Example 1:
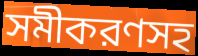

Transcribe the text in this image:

সমীকরণসহ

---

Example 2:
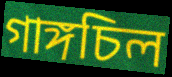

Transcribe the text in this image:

গাঙ্গচিল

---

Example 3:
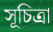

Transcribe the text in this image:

সূচিত্রা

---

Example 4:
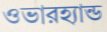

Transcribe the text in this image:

ওভারহ্যান্ড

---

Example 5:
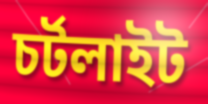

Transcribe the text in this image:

চর্টলাইট